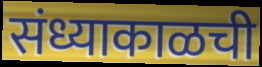
संध्याकाळची